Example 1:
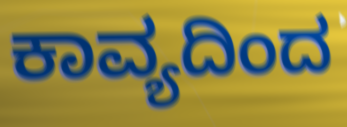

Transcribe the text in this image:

ಕಾವ್ಯದಿಂದ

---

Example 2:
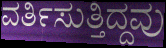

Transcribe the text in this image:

ವರ್ತಿಸುತ್ತಿದ್ದವು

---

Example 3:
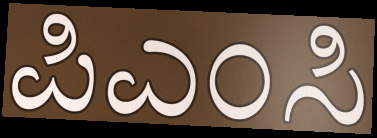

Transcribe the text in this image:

ಪಿಎಂಸಿ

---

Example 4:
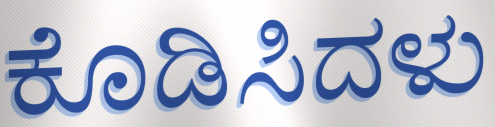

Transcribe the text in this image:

ಕೊಡಿಸಿದಳು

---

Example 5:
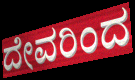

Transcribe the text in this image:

ದೇವರಿಂದ